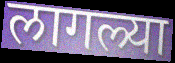
लागल्या